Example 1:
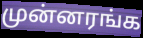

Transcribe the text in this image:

முன்னரங்க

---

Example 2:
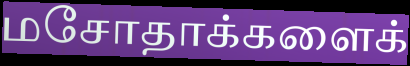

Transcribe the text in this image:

மசோதாக்களைக்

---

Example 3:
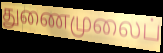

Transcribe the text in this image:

துணைமுலைப்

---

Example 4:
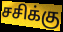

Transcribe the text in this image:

சசிக்கு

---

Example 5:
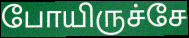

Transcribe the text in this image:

போயிருச்சே